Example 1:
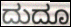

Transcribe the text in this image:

ದುದೂ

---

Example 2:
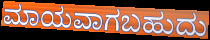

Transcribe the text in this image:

ಮಾಯವಾಗಬಹುದು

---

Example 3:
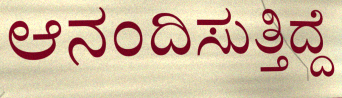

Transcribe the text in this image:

ಆನಂದಿಸುತ್ತಿದ್ದೆ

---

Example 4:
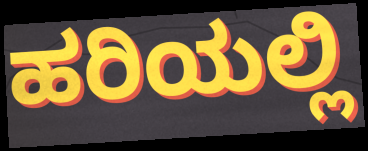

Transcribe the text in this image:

ಹರಿಯಲ್ಲಿ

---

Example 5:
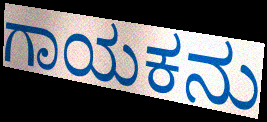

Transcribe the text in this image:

ಗಾಯಕನು